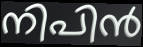
നിപിൻ